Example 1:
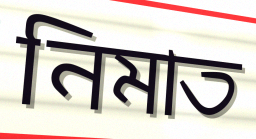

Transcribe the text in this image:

নিমাত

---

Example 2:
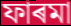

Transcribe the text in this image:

ফাৰমা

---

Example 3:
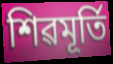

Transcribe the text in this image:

শিৱমূৰ্তি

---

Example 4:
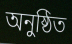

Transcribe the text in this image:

অনুষ্ঠিত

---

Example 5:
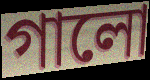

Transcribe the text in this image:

গালো